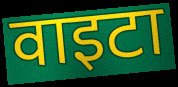
वाइटा